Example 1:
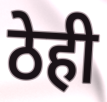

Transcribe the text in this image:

ठेही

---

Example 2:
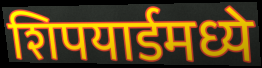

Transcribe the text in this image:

शिपयार्डमध्ये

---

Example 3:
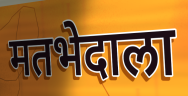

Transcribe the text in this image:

मतभेदाला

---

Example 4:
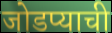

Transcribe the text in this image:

जोडप्याची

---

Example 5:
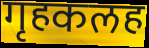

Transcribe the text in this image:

गृहकलह